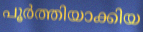
പൂർത്തിയാക്കിയ